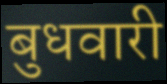
बुधवारी